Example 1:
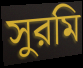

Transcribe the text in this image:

সুরমি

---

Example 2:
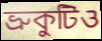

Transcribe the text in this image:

ভ্রুকুটিও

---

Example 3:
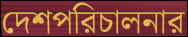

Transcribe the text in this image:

দেশপরিচালনার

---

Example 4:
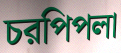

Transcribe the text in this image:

চরপিপলা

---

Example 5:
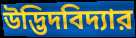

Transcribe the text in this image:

উদ্ভিদবিদ্যার